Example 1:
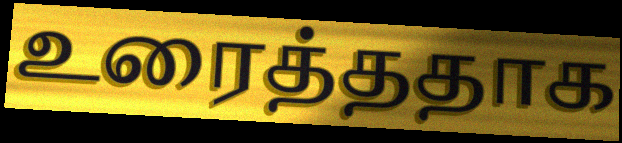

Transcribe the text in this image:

உரைத்ததாக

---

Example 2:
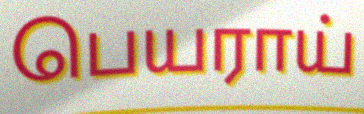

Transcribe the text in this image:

பெயராய்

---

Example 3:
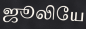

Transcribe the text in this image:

ஜூலியே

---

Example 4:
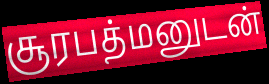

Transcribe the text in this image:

சூரபத்மனுடன்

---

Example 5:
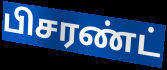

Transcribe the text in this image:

பிசரண்ட்